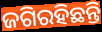
ଜଗିରହିଛନ୍ତି